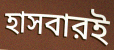
হাসবারই